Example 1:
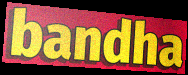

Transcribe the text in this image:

bandha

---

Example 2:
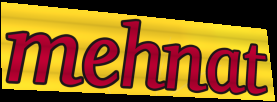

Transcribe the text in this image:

mehnat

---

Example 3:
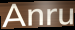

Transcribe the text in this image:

Anru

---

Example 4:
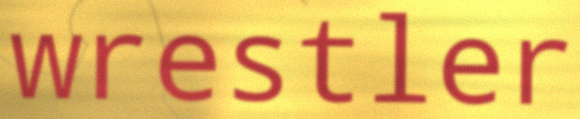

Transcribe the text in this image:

wrestler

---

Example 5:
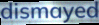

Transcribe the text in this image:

dismayed